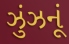
ઝુંઝનૂં